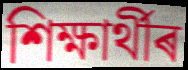
শিক্ষাৰ্থীৰ